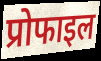
प्रोफाइल